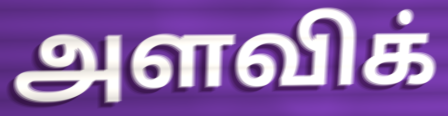
அளவிக்